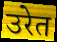
उरेत